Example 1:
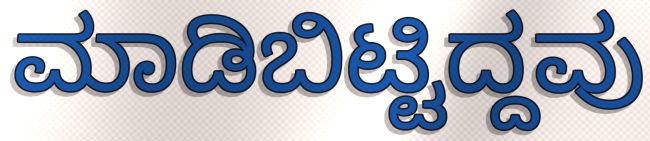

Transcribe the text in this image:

ಮಾಡಿಬಿಟ್ಟಿದ್ದವು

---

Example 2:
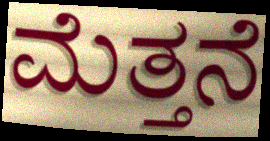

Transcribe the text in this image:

ಮೆತ್ತನೆ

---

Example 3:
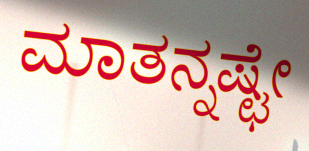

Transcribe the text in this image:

ಮಾತನ್ನಷ್ಟೇ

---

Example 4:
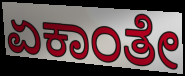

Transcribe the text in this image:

ಏಕಾಂತೇ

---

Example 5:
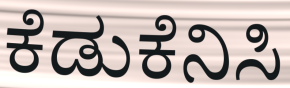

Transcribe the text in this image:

ಕೆಡುಕೆನಿಸಿ